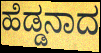
ಹೆಡ್ಡನಾದ